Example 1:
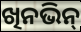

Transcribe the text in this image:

ଖିନଭିନ୍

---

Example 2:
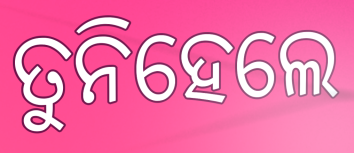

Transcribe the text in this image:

ତୁନିହେଲେ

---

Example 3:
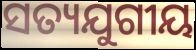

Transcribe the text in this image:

ସତ୍ୟଯୁଗୀୟ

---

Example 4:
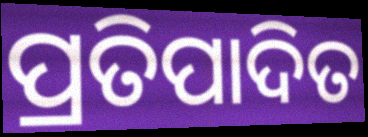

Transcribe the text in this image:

ପ୍ରତିପାଦିତ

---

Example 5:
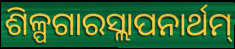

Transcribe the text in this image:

ଶିଳ୍ପଗାରସ୍ଲାପନାର୍ଥମ୍